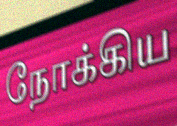
நோக்கிய